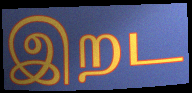
இறட